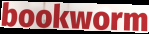
bookworm